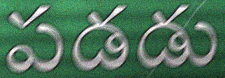
పడడు